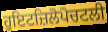
ਹੁਇਟਜ਼ਿਲੋਪੋਚਟਲੀ